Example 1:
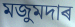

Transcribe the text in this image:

মজুমদাৰ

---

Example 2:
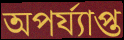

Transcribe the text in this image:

অপৰ্য্যাপ্ত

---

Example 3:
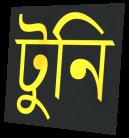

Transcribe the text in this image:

টুনি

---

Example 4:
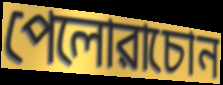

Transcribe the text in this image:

পেলোৱাচোন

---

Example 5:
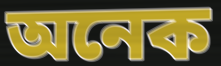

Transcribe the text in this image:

অনেক